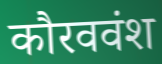
कौरववंश